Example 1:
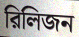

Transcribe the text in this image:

রিলিজন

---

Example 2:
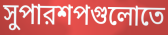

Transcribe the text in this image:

সুপারশপগুলোতে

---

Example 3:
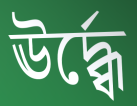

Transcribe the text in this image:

ঊর্দ্ধ্বে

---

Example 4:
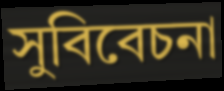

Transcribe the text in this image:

সুবিবেচনা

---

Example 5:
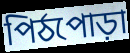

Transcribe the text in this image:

পিঠপোড়া